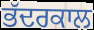
ਭੱਦਰਕਾਲ